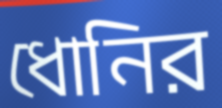
ধোনির